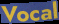
Vocal